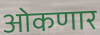
ओकणार